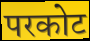
परकोट